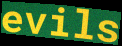
evils